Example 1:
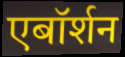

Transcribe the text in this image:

एबॉर्शन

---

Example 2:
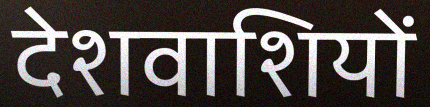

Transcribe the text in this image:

देशवाशियों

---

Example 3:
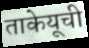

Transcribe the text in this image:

ताकेयूची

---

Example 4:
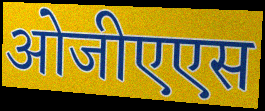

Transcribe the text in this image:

ओजीएएस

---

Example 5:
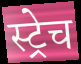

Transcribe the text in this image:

स्ट्रेच